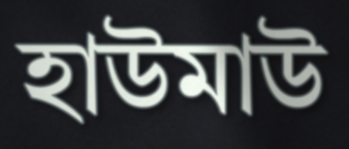
হাউমাউ